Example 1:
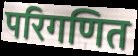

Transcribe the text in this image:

परिगणित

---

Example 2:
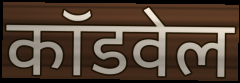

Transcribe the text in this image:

कॉडवेल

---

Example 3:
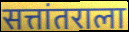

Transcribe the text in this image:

सत्तांतराला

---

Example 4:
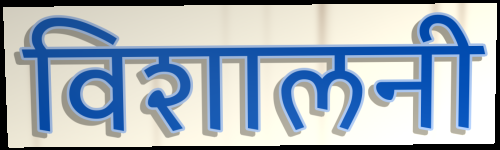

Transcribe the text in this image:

विशालनी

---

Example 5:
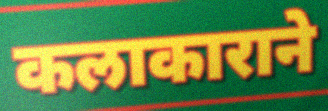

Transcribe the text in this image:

कलाकाराने